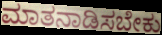
ಮಾತನಾಡಿಸಬೇಕು